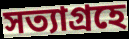
সত্যাগ্রহে